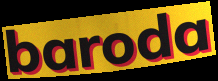
baroda